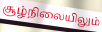
சூழ்நிலையிலும்